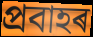
প্ৰবাহৰ